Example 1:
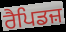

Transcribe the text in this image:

ਰੈਪਿਡਜ਼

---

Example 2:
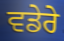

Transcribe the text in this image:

ਵਡੇਰੇ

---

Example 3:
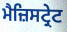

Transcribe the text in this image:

ਮੈਜ਼ਿਸਟ੍ਰੇਟ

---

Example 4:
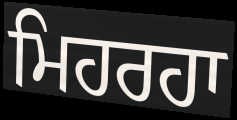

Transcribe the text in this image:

ਮਿਹਰਹਾ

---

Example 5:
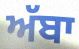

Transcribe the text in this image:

ਅੱਬਾ